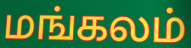
மங்கலம்